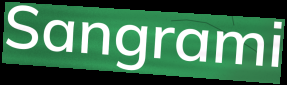
Sangrami